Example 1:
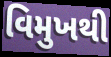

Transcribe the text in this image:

વિમુખથી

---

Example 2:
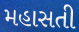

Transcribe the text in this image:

મહાસતી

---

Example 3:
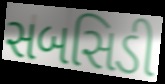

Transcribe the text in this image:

સબસિડી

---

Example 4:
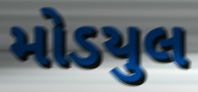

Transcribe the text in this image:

મોડયુલ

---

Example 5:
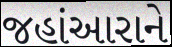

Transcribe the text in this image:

જહાંઆરાને